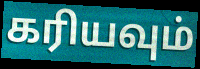
கரியவும்